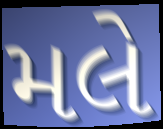
મલે